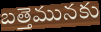
బత్తెమునకు